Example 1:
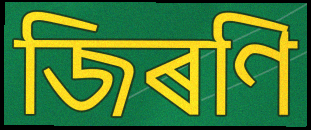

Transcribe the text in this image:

জিৰণি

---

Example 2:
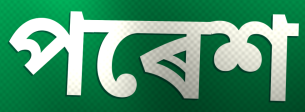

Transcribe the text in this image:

পৰেশ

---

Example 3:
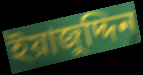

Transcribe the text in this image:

ইয়াজুদ্দিন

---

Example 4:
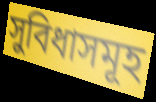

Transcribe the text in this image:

সুবিধাসমূহ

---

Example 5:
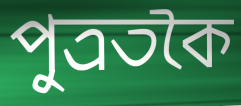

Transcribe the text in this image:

পুত্ৰতকৈ